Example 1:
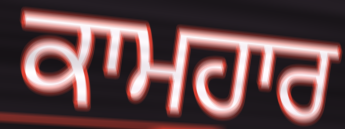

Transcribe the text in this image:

ਕਾਮਹਾਰ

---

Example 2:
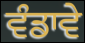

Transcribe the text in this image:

ਵੰਡਾਵੇ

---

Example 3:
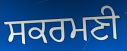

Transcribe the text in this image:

ਸਕਰਮਣੀ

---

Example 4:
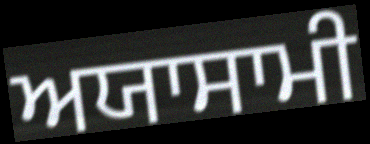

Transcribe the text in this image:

ਅਯਾਸਾਮੀ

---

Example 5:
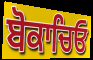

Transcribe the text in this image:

ਬੋਕਾਚਿਓ